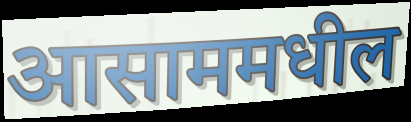
आसाममधील